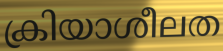
ക്രിയാശീലത